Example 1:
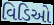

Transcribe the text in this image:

વિડિઓ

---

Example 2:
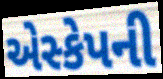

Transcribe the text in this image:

એસ્કેપની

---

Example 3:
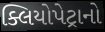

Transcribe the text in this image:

ક્લિયોપેટ્રાનો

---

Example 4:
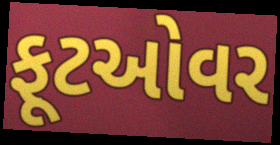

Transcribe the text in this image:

ફૂટઓવર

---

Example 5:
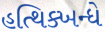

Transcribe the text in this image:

હત્થિક્ખન્ધે